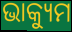
ଭାକ୍ୟୁମ